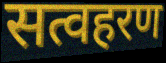
सत्वहरण